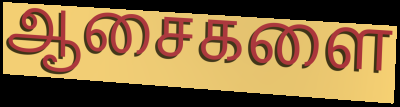
ஆசைகளை